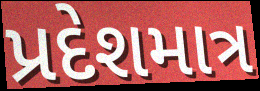
પ્રદેશમાત્ર